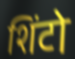
शिंटो